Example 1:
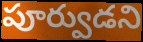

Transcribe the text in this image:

పూర్వుడని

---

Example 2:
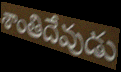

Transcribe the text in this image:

శాంతిదేవుడు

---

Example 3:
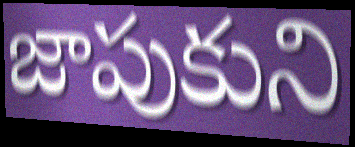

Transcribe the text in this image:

జాపుకుని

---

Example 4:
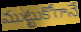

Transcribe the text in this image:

ముట్టుకోగానే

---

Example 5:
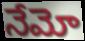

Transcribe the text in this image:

నేమో